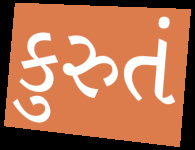
કુરુતં